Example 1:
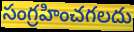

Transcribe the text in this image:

సంగ్రహించగలదు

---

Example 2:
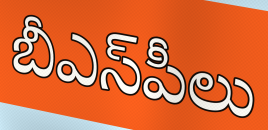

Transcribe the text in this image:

బీఎస్‌పీలు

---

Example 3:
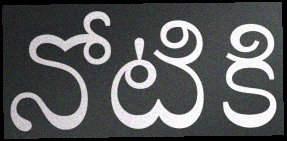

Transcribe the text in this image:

నోటికి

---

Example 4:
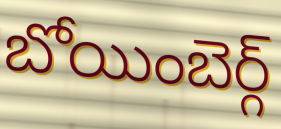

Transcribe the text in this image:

బోయింబెర్గ్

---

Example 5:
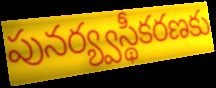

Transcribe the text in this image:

పునర్య్వస్థీకరణకు